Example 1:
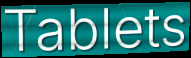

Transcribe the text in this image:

Tablets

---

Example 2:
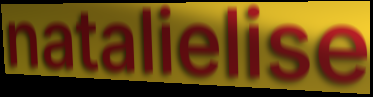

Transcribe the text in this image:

natalielise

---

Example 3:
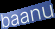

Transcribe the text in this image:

baanu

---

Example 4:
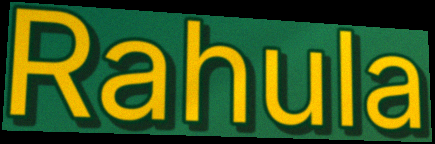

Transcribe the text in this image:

Rahula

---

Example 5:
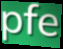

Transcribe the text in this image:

pfe